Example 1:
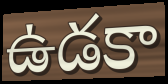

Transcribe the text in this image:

ఉడకా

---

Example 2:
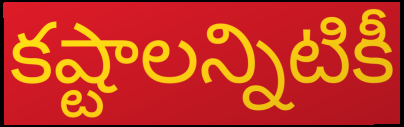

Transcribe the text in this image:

కష్టాలన్నిటికీ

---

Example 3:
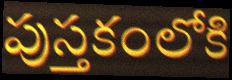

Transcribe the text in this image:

పుస్తకంలోకి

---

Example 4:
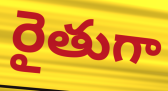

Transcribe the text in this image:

రైతుగా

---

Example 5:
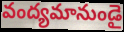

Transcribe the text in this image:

వంద్యమానుండై